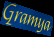
Gramya